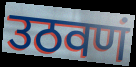
उठवणं